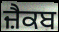
ਜ਼ੈਕਬ